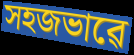
সহজভাৱে